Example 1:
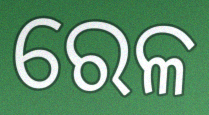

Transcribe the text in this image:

ରେଳ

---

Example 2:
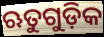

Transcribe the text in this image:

ଋତୁଗୁଡ଼ିକ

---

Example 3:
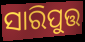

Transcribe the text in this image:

ସାରିପୁତ୍ତ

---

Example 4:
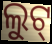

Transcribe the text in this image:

ଲୁଟ୍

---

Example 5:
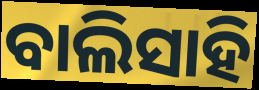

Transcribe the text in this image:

ବାଲିସାହି